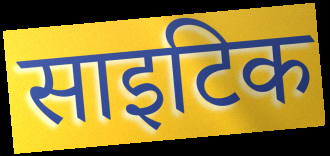
साइटिक